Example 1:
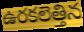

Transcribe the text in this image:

ఉరకలెత్తిన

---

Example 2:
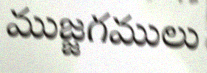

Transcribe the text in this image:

ముజ్జగములు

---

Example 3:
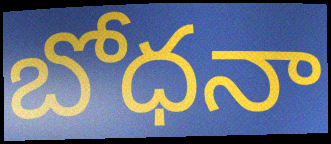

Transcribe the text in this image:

బోధనా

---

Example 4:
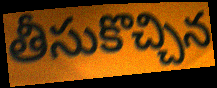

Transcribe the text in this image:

తీసుకొచ్చిన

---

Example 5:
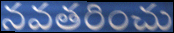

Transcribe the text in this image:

నవతరించు